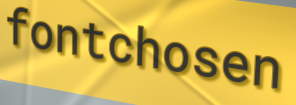
fontchosen